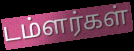
டம்ளர்கள்